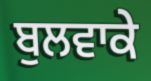
ਬੁਲਵਾਕੇ